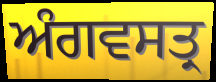
ਅੰਗਵਸਤ੍ਰ